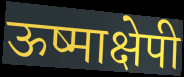
ऊष्माक्षेपी